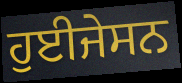
ਹੁਈਜੇਸਨ